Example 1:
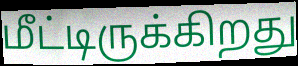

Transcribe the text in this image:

மீட்டிருக்கிறது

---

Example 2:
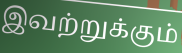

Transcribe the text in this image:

இவற்றுக்கும்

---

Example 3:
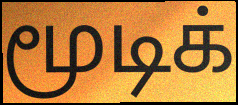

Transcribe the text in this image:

மூடிக்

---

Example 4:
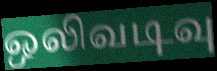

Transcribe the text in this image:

ஒலிவடிவு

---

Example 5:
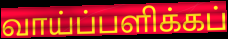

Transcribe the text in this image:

வாய்ப்பளிக்கப்